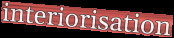
interiorisation